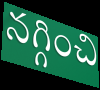
నగ్గించి